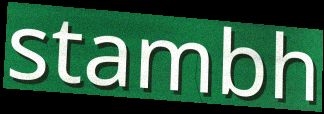
stambh